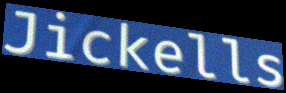
Jickells